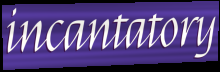
incantatory